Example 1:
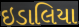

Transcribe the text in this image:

ઇડાલિયા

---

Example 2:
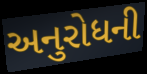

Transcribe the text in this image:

અનુરોધની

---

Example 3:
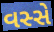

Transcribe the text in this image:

વસ્સે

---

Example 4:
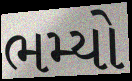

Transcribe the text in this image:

ભમ્યો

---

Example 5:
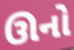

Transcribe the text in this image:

ઊનો